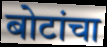
बोटांचा